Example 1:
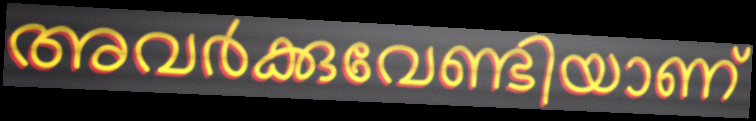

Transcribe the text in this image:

അവർക്കുവേണ്ടിയാണ്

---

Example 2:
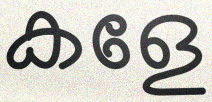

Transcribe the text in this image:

കളേ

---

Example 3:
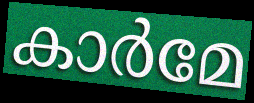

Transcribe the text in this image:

കാർമേ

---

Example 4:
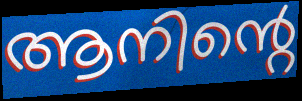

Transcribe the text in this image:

ആനിന്റെ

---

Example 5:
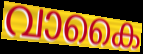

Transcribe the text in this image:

വാകൈ